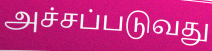
அச்சப்படுவது